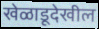
खेळाडूदेखील